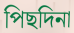
পিছদিনা